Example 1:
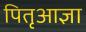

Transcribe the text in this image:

पितृआज्ञा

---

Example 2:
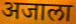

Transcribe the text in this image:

अजाला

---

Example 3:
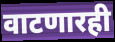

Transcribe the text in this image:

वाटणारही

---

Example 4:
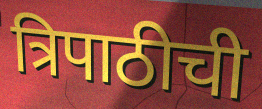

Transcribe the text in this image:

त्रिपाठीची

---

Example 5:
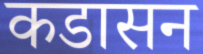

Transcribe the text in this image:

कडासन